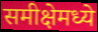
समीक्षेमध्ये